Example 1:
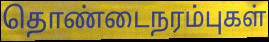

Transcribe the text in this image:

தொண்டைநரம்புகள்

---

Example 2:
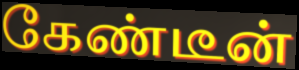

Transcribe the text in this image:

கேண்டீன்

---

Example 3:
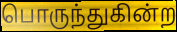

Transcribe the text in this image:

பொருந்துகின்ற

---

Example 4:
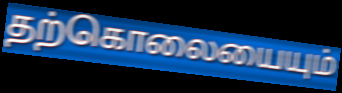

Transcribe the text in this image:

தற்கொலையையும்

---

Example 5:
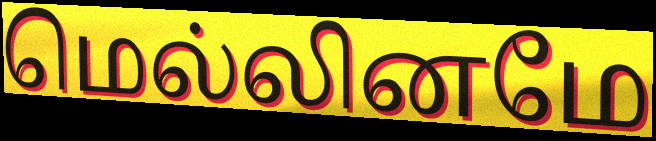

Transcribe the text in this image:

மெல்லினமே